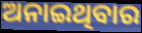
ଅନାଇଥିବାର